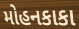
મોહનકાકા